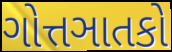
ગોત્તઞાતકો